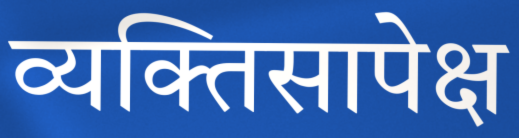
व्यक्तिसापेक्ष